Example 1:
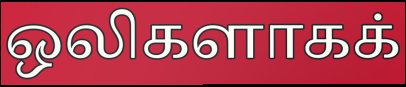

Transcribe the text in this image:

ஒலிகளாகக்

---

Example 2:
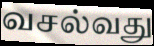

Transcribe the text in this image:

வசல்வது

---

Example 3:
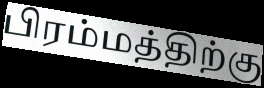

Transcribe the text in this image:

பிரம்மத்திற்கு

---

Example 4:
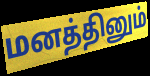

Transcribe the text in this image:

மனத்தினும்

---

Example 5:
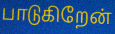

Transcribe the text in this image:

பாடுகிறேன்